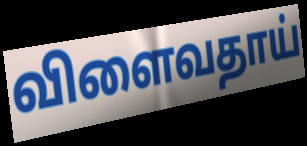
விளைவதாய்